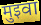
मुइवा